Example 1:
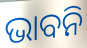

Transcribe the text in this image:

ଭାବନି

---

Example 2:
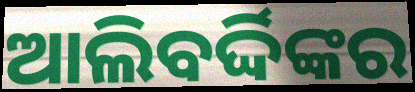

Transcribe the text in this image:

ଆଲିବର୍ଦ୍ଦିଙ୍କର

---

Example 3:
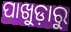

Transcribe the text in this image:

ପାଖୁଡ଼ାରୁ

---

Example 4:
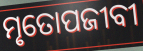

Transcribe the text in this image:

ମୃତୋପଜୀବୀ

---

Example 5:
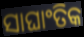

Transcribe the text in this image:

ସାଘାଂତିକ